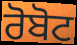
ਰੋਬੋਟ